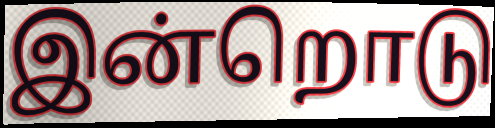
இன்றொடு